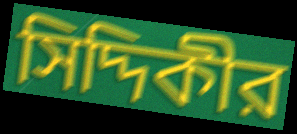
সিদ্দিকীর